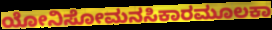
ಯೋನಿಸೋಮನಸಿಕಾರಮೂಲಕಾ